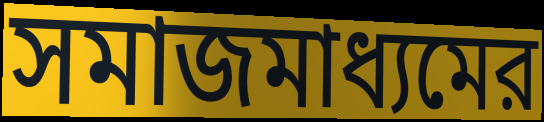
সমাজমাধ্যমের